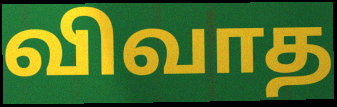
விவாத